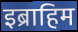
इब्राहिम